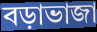
বড়াভাজা